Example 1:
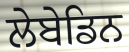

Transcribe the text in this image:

ਲੇਬੇਡਿਨ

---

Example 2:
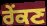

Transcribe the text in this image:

ਰੇੰਕਣ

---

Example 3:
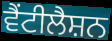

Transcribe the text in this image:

ਵੈਂਟੀਲੈਸ਼ਨ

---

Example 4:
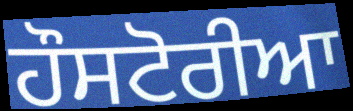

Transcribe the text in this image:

ਹੌਸਟੋਰੀਆ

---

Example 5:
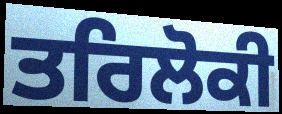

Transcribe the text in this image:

ਤਰਿਲੋਕੀ